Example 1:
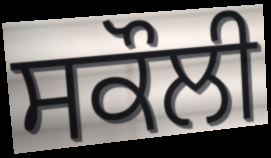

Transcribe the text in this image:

ਸਕੌਲੀ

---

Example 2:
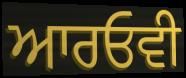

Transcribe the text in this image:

ਆਰਓਵੀ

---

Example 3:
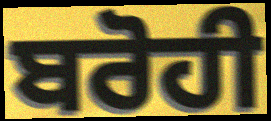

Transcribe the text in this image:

ਬਰੋਹੀ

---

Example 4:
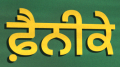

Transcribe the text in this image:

ਫ਼ੈਨੀਕੇ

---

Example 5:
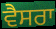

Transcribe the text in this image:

ਵੈਸਰਾ